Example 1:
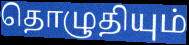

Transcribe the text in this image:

தொழுதியும்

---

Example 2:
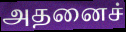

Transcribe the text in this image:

அதனைச்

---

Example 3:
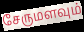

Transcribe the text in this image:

சேருமளவும்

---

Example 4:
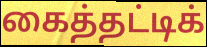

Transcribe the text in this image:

கைத்தட்டிக்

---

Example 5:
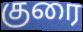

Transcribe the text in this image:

குரை